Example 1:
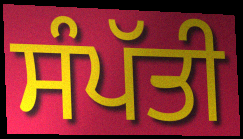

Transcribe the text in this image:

ਸੰਪੱਤੀ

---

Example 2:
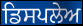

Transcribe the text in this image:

ਡਿਸਪਲੇਅ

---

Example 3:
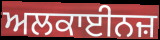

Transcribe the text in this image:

ਅਲਕਾਈਨਜ਼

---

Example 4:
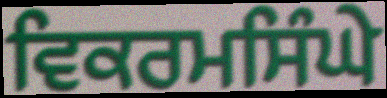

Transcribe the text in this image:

ਵਿਕਰਮਸਿੰਘੇ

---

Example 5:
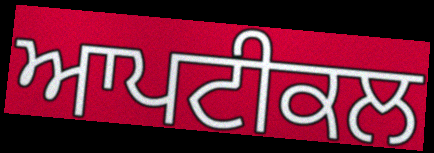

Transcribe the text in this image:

ਆਪਟੀਕਲ